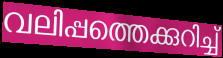
വലിപ്പത്തെക്കുറിച്ച്